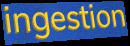
ingestion